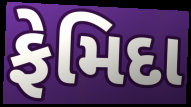
ફેમિદા